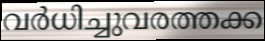
വർധിച്ചുവരത്തക്ക